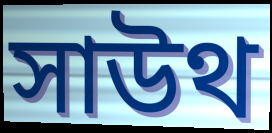
সাউথ